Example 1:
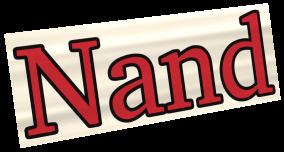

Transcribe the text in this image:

Nand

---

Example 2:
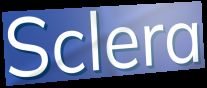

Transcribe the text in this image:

Sclera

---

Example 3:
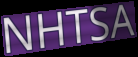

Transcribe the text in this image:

NHTSA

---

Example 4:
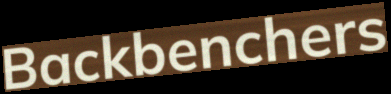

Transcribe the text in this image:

Backbenchers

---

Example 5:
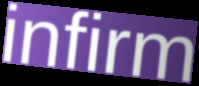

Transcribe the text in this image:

infirm